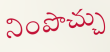
నింపొచ్చు